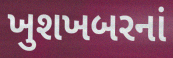
ખુશખબરનાં